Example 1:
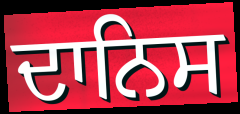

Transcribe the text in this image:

ਦਾਨਿਸ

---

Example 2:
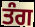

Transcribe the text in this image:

ਤੰਗ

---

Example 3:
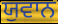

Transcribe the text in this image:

ਯੁਵਾਨ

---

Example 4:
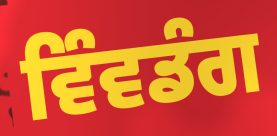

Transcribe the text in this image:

ਵਿੰਵਡੰਗ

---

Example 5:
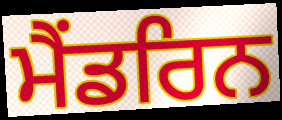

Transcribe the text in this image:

ਮੈਂਡਰਿਨ